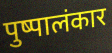
पुष्पालंकार